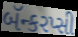
બૅન્કરપ્સી